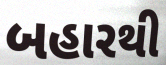
બહારથી